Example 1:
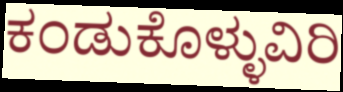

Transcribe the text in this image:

ಕಂಡುಕೊಳ್ಳುವಿರಿ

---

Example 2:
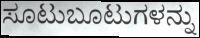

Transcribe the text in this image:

ಸೂಟುಬೂಟುಗಳನ್ನು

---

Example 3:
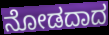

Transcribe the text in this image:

ನೋಡದಾದ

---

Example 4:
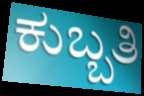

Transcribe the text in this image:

ಕುಬ್ಬತಿ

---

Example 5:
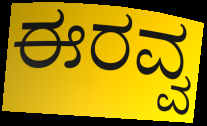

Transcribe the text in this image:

ಈರವ್ವ